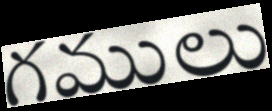
గములు